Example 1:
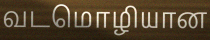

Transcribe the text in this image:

வடமொழியான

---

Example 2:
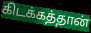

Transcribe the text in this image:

கிடக்கத்தான்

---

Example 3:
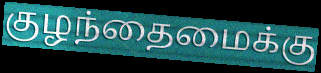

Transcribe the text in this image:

குழந்தைமைக்கு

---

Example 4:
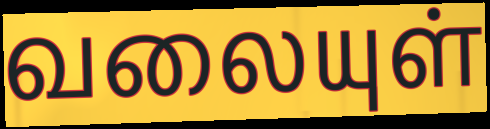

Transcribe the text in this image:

வலையுள்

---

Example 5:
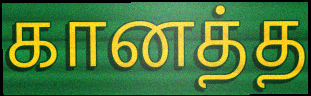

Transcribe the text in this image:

கானத்த